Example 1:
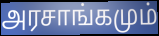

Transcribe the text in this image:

அரசாங்கமும்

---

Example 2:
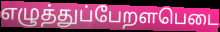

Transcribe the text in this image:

எழுத்துப்பேறளபெடை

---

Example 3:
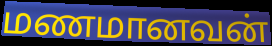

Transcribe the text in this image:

மணமானவன்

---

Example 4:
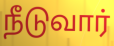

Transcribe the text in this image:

நீடுவார்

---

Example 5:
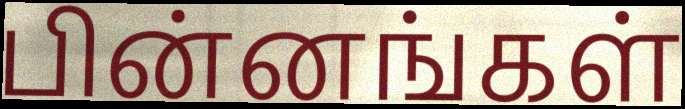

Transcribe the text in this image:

பின்னங்கள்